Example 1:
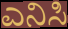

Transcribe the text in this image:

ಎನಿಸಿ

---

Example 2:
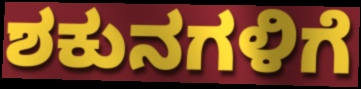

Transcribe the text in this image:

ಶಕುನಗಳಿಗೆ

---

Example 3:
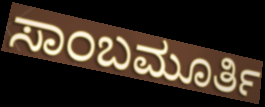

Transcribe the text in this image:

ಸಾಂಬಮೂರ್ತಿ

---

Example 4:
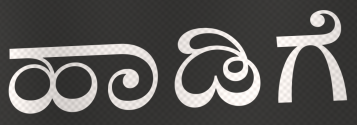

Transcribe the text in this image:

ಹಾಡಿಗೆ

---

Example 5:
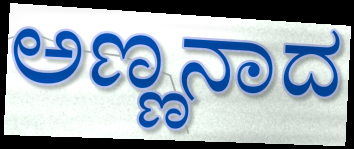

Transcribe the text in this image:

ಅಣ್ಣನಾದ